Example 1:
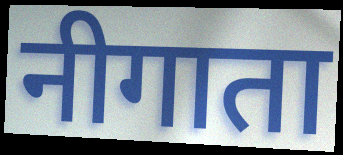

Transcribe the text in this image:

नीगाता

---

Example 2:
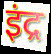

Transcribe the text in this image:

इंद्र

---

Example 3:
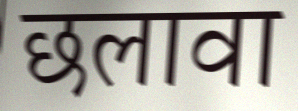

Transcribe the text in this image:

छलावा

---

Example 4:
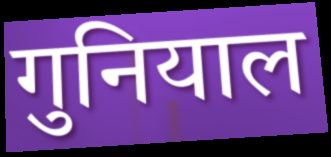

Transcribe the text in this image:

गुनियाल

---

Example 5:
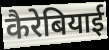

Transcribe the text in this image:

कैरेबियाई